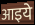
आइये